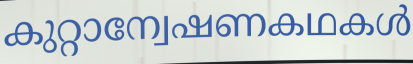
കുറ്റാന്വേഷണകഥകൾ